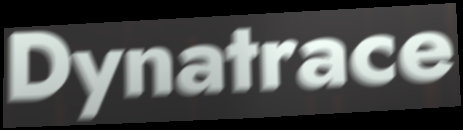
Dynatrace